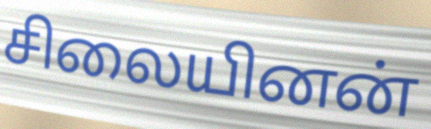
சிலையினன்